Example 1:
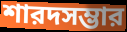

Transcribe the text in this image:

শারদসম্ভার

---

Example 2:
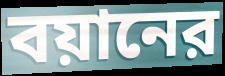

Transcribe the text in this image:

বয়ানের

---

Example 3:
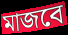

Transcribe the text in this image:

মাজবে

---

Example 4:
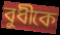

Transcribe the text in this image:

বুধীকে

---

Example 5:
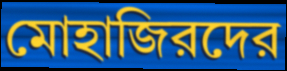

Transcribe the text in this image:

মোহাজিরদের